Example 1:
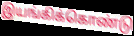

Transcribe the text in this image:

இயங்கிக்கொண்டு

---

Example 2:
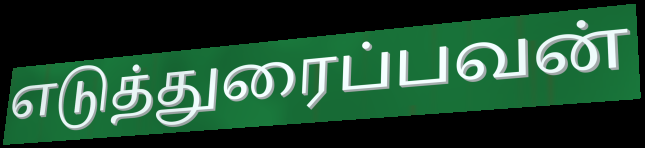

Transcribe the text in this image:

எடுத்துரைப்பவன்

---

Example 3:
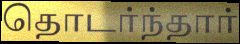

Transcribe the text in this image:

தொடர்ந்தார்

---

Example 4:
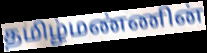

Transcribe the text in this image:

தமிழ்மண்ணின்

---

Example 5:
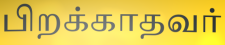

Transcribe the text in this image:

பிறக்காதவர்